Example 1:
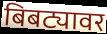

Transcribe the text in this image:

बिबट्यावर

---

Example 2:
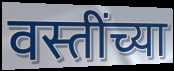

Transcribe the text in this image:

वस्तींच्या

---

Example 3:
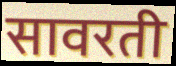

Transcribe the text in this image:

सावरती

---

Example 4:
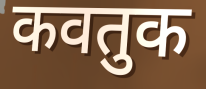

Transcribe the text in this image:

कवतुक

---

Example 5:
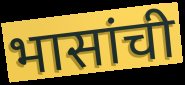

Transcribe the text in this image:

भासांची